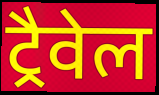
ट्रैवेल